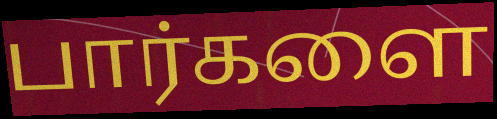
பார்களை